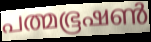
പത്മഭൂഷൺ